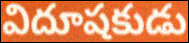
విదూషకుడు